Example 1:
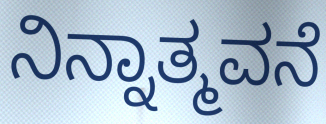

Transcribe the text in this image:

ನಿನ್ನಾತ್ಮವನೆ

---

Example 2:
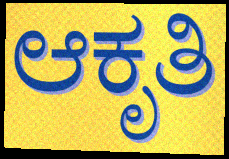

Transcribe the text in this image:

ಆಕೃತಿ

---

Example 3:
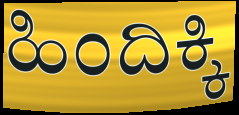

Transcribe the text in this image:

ಹಿಂದಿಕ್ಕಿ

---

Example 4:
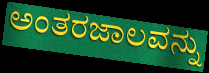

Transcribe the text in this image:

ಅಂತರಜಾಲವನ್ನು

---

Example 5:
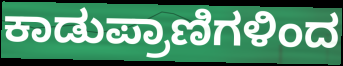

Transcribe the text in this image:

ಕಾಡುಪ್ರಾಣಿಗಳಿಂದ